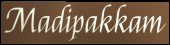
Madipakkam